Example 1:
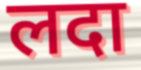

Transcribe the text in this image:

लदा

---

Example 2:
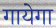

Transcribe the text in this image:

गायेगा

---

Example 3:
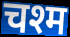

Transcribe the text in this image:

चश्म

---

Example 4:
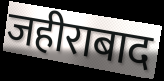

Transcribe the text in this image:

जहीराबाद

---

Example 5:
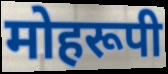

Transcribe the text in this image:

मोहरूपी